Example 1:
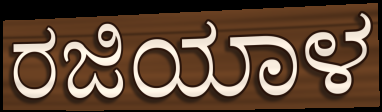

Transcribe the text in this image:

ರಜಿಯಾಳ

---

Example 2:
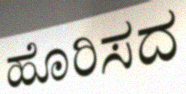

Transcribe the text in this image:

ಹೊರಿಸದ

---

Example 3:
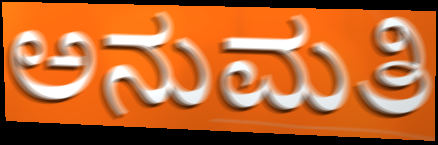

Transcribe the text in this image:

ಅನುಮತಿ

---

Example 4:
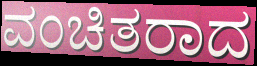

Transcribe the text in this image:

ವಂಚಿತರಾದ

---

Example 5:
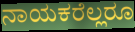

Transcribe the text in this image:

ನಾಯಕರೆಲ್ಲರೂ